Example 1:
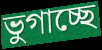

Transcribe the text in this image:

ভুগাচ্ছে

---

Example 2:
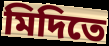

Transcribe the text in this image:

মিদিতে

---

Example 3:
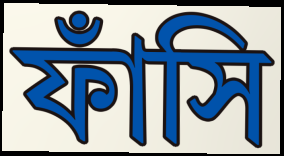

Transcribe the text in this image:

ফাঁসি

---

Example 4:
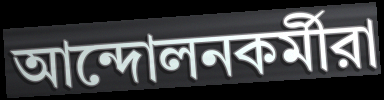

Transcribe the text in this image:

আন্দোলনকর্মীরা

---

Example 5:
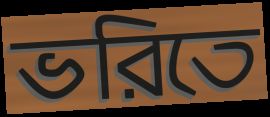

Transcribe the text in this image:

ভরিতে